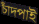
চাঁদপাই